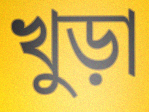
খুড়া